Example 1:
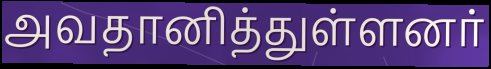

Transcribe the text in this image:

அவதானித்துள்ளனர்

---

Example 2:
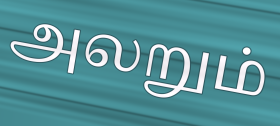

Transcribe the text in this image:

அலறும்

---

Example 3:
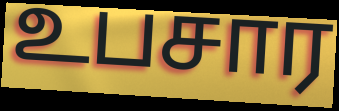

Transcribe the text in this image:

உபசார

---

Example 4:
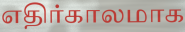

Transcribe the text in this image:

எதிர்காலமாக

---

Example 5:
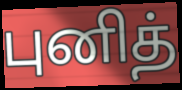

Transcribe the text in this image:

புனித்